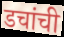
डचांची